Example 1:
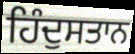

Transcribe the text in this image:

ਹਿੰਦੁਸਤਾਨ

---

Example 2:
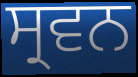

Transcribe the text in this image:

ਸ੍ਰਵਨ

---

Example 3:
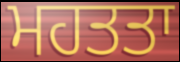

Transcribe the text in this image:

ਮਹਤਤਾ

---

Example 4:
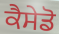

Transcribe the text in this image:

ਕੈਸੇਡੋ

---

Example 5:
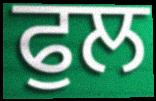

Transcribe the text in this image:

ਫੁਲ